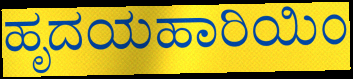
ಹೃದಯಹಾರಿಯಿಂ